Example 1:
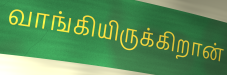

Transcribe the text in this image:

வாங்கியிருக்கிறான்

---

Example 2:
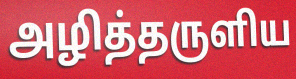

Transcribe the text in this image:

அழித்தருளிய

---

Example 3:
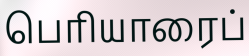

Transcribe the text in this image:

பெரியாரைப்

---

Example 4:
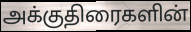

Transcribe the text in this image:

அக்குதிரைகளின்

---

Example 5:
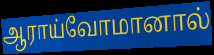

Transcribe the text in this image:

ஆராய்வோமானால்